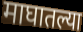
माघातल्या